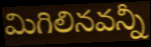
మిగిలినవన్నీ